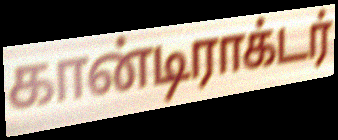
கான்டிராக்டர்